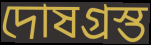
দোষগ্রস্ত